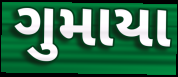
ગુમાયા